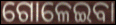
ଗୋଳେଇବା